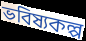
ভবিষ্যকল্প